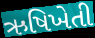
ઋષિખેતી